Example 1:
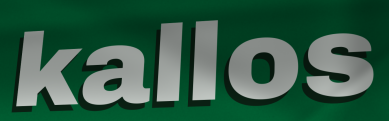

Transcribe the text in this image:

kallos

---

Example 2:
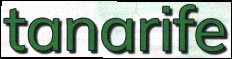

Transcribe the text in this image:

tanarife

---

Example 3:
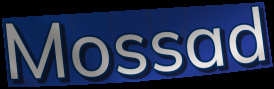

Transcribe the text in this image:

Mossad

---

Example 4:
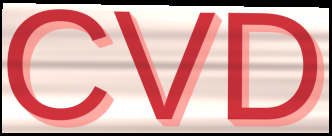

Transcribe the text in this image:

CVD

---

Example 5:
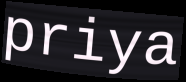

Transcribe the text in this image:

priya